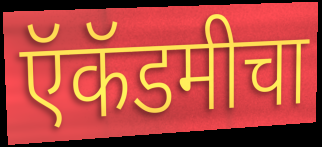
ऍकॅडमीचा